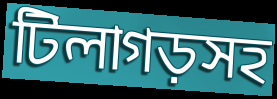
টিলাগড়সহ